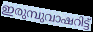
ഇരുമ്പുവാഷറിട്ട്